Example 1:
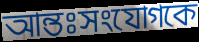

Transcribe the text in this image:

আন্তঃসংযোগকে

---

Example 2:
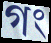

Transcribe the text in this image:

গং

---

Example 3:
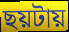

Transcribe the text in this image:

ছয়টায়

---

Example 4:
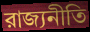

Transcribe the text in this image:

রাজ্যনীতি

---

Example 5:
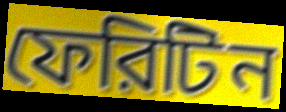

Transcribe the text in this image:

ফেরিটিন